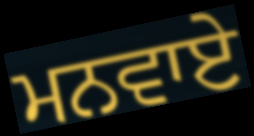
ਮਨਵਾਏ